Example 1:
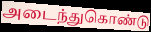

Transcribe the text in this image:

அடைந்துகொண்டு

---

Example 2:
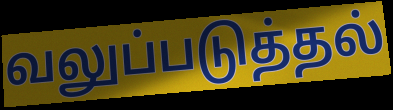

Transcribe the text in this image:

வலுப்படுத்தல்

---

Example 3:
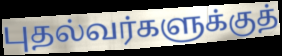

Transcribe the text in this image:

புதல்வர்களுக்குத்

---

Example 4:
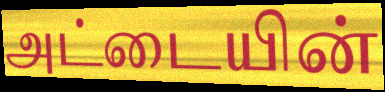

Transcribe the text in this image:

அட்டையின்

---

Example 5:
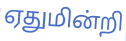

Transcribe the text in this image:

ஏதுமின்றி